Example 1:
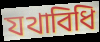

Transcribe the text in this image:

যথাবিধি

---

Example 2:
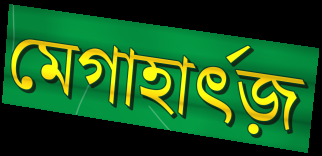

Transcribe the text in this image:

মেগাহার্ৎজ়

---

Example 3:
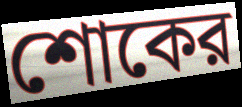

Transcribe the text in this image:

শোকের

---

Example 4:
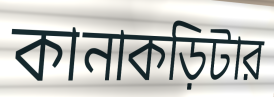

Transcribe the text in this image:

কানাকড়িটার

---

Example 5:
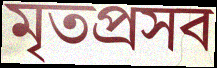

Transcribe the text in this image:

মৃতপ্রসব